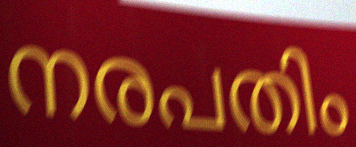
നരപതിം